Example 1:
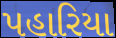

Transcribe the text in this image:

પહારિયા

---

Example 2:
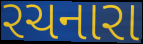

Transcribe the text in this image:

રચનારા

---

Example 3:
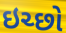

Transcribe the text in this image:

ઇચ્છો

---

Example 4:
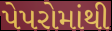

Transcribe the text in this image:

પેપરોમાંથી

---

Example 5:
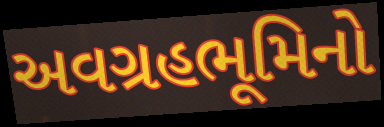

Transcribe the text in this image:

અવગ્રહભૂમિનો